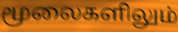
மூலைகளிலும்